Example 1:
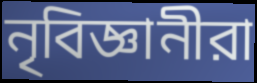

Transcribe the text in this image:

নৃবিজ্ঞানীরা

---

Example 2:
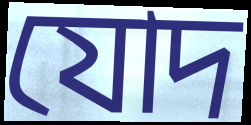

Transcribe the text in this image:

যোদ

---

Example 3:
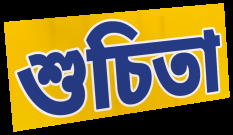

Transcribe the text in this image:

শুচিতা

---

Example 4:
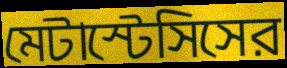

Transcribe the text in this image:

মেটাস্টেসিসের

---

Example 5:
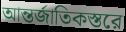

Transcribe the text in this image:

আন্তর্জাতিকস্তরে